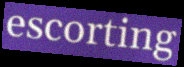
escorting